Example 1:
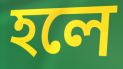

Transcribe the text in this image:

হলে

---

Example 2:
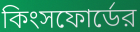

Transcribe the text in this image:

কিংসফোর্ডের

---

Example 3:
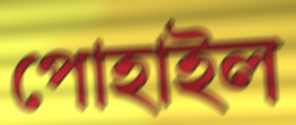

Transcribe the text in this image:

পোহাইল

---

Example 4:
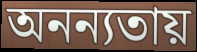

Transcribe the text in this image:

অনন্যতায়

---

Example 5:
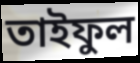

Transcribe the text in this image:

তাইফুল